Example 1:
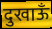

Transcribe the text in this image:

दुखाऊँ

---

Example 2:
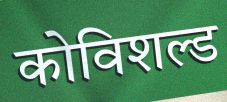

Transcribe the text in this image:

कोविशल्ड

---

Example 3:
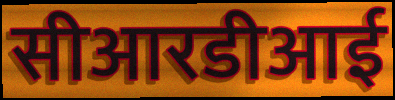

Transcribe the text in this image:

सीआरडीआई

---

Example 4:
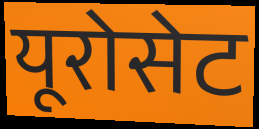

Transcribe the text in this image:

यूरोसेट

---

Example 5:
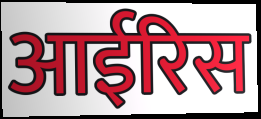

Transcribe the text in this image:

आईरिस